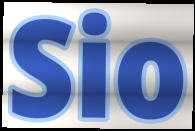
Sio